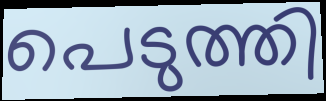
പെടുത്തി